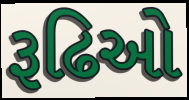
રૂઢિઓ